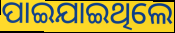
ପାଇଯାଇଥିଲେ